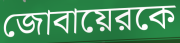
জোবায়েরকে